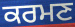
ਕਰਮਣ